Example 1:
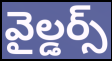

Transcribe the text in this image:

వైల్డర్స్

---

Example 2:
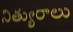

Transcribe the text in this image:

నిత్యురాలు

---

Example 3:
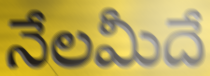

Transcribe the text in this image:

నేలమీదే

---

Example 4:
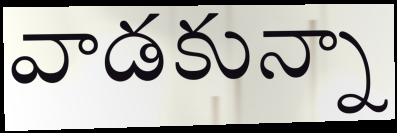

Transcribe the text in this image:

వాడకున్నా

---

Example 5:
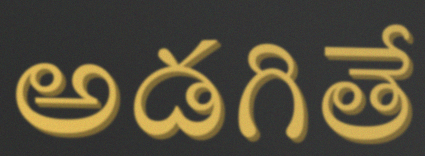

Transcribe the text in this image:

అడగితే